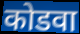
कोडवा